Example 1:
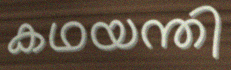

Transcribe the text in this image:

കഥയന്തി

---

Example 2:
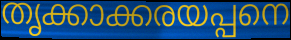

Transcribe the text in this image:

തൃക്കാക്കരയപ്പനെ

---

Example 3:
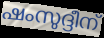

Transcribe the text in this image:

ഷംസുദ്ദീന്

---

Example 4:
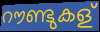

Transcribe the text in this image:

റൗണ്ടുകള്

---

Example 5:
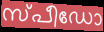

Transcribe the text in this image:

സ്പീഡോ